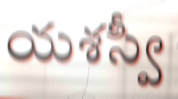
యశస్వీ